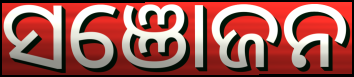
ସଞୋଜନ